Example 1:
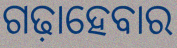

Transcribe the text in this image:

ଗଢ଼ାହେବାର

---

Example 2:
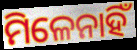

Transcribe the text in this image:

ମିଳେନାହିଁ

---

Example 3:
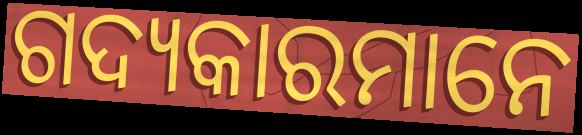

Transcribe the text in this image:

ଗଦ୍ୟକାରମାନେ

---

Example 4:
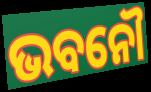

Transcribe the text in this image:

ଭବନୌ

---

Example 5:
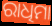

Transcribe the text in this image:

ରାଧିମା